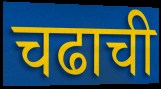
चढाची